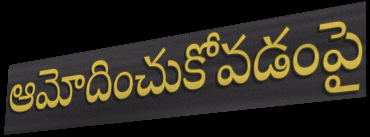
ఆమోదించుకోవడంపై